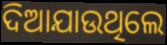
ଦିଆଯାଉଥିଲେ